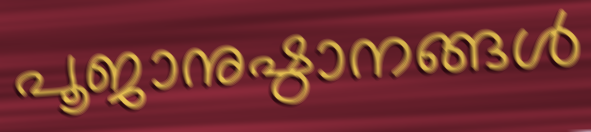
പൂജാനുഷ്ഠാനങ്ങൾ